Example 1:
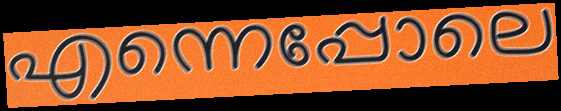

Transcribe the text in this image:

എന്നെപ്പോലെ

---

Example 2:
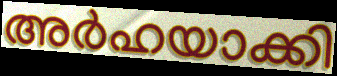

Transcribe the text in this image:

അർഹയാക്കി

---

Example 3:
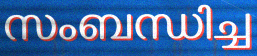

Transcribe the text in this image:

സംബന്ധിച്ച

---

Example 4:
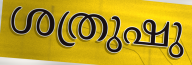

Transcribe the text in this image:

ശത്രുഷു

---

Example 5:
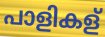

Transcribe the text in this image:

പാളികള്